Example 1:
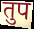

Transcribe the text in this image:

तुप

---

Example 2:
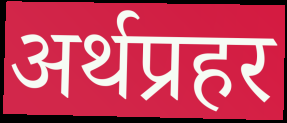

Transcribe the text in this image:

अर्थप्रहर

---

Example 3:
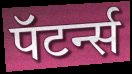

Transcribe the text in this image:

पॅटर्न्स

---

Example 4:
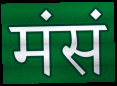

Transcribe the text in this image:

मंसं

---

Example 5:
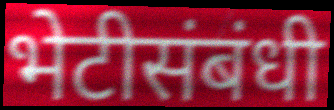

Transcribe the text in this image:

भेटीसंबंधी